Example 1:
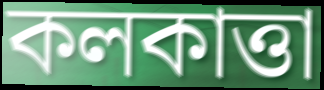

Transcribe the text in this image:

কলকাত্তা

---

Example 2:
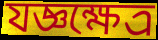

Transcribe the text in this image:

যজ্ঞক্ষেত্র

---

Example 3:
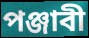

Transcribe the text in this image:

পঞ্জাবী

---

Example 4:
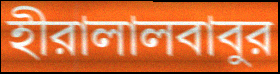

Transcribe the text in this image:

হীরালালবাবুর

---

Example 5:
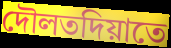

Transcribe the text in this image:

দৌলতদিয়াতে